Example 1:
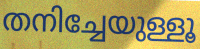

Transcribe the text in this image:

തനിച്ചേയുള്ളൂ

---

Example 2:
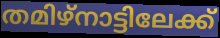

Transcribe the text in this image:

തമിഴ്നാട്ടിലേക്ക്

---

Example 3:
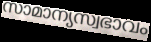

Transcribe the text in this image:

സാമാന്യസ്വഭാവം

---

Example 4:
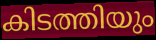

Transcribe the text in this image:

കിടത്തിയും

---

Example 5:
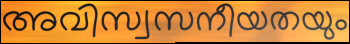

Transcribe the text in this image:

അവിസ്വസനീയതയും